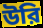
উরি